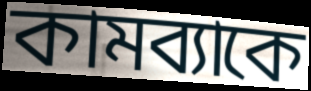
কামব্যাকে